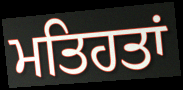
ਮਤਿਹਤਾਂ